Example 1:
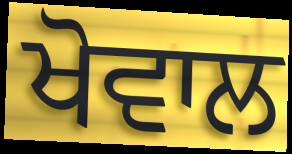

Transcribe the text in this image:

ਖੋਵਾਲ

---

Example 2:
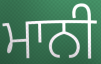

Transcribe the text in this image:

ਮਾਨੀ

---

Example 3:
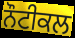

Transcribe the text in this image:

ਨੌਟੀਕਲ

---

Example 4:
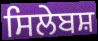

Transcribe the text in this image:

ਸਿਲੇਬਸ਼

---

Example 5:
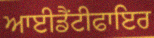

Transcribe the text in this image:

ਆਈਡੈਂਟੀਫਾਇਰ